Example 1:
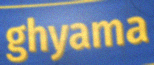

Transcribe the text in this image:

ghyama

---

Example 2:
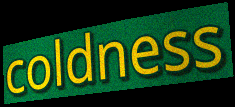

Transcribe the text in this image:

coldness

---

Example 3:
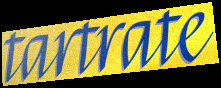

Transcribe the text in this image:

tartrate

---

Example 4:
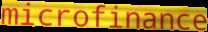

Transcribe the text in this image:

microfinance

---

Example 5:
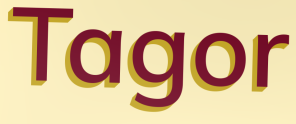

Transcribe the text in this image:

Tagor